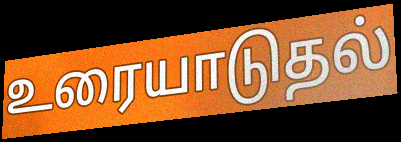
உரையாடுதல்